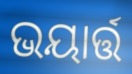
ଭୟାର୍ତ୍ତ